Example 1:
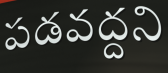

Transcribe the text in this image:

పడవద్దని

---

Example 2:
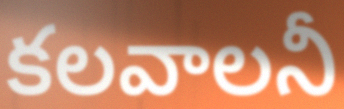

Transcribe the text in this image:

కలవాలనీ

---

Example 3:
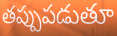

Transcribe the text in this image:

తప్పుపడుతూ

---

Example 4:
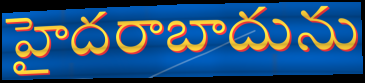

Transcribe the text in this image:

హైదరాబాదును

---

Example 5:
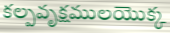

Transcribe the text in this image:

కల్పవృక్షములయొక్క